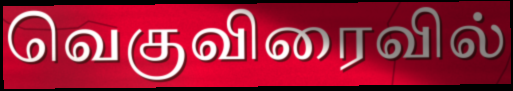
வெகுவிரைவில்